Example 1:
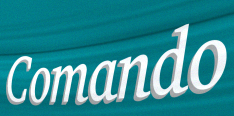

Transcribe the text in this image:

Comando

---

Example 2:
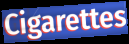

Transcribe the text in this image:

Cigarettes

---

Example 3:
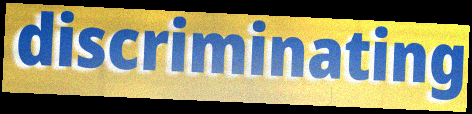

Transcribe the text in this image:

discriminating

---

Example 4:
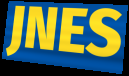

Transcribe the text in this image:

JNES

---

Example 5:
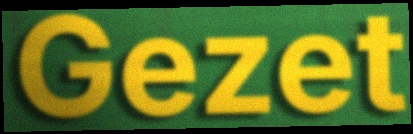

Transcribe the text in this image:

Gezet